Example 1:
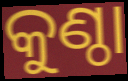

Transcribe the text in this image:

କୁଣ୍ଠା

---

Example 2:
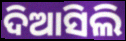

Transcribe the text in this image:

ଦିଆସିଲି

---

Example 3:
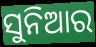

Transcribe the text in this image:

ସୁନିଆର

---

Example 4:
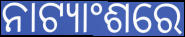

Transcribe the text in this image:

ନାଟ୍ୟାଂଶରେ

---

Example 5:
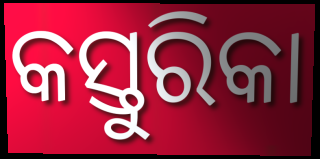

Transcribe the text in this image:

କସ୍ତୁରିକା